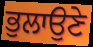
ਭੁਲਾਉਣੇ